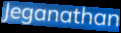
Jeganathan